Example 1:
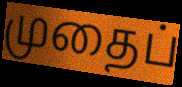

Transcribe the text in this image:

முதைப்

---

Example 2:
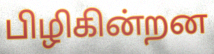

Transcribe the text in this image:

பிழிகின்றன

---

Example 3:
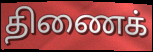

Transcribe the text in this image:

திணைக்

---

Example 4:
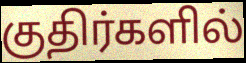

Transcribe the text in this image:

குதிர்களில்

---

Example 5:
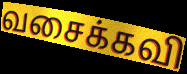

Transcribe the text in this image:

வசைக்கவி